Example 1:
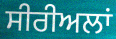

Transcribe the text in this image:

ਸੀਰੀਅਲਾਂ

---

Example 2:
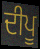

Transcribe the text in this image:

ਦੀਪੂ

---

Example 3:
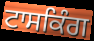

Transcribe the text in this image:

ਟਾਸਕਿੰਗ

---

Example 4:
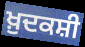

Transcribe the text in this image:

ਖ਼ੁਦਕਸ਼ੀ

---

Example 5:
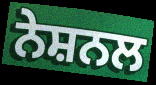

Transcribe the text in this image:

ਨੇਸ਼ਨਲ